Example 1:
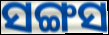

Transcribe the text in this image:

ସଙ୍ଗସ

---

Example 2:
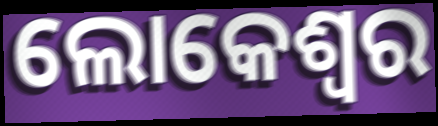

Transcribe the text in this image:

ଲୋକେଶ୍ୱର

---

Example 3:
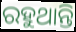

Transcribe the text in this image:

ରହୁଥାନ୍ତି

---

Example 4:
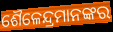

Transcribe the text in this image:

ଶୈଳେନ୍ଦ୍ରମାନଙ୍କର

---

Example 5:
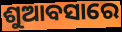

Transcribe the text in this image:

ଶୁଆବସାରେ